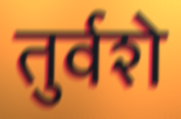
तुर्वशे